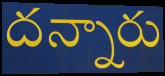
దన్నారు